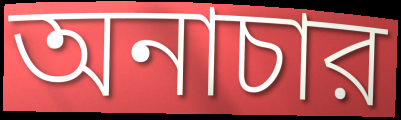
অনাচার